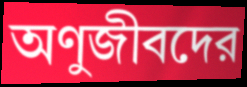
অণুজীবদের